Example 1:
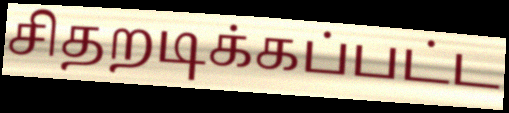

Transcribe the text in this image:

சிதறடிக்கப்பட்ட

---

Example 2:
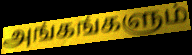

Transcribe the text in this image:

அங்கங்களும்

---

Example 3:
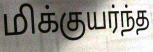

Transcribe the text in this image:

மிக்குயர்ந்த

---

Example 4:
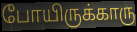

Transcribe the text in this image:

போயிருக்காரு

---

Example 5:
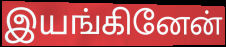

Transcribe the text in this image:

இயங்கினேன்